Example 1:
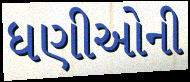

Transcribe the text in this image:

ધણીઓની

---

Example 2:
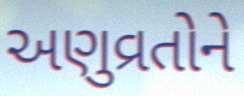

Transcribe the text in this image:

અણુવ્રતોને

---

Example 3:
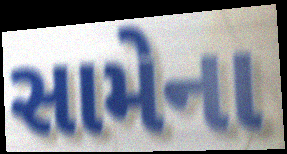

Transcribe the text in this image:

સામેના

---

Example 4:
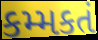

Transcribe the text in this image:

કમ્મકતં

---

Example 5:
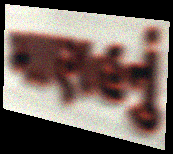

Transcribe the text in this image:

માણહનું